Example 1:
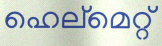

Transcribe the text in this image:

ഹെല്മെറ്റ്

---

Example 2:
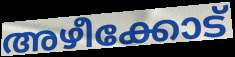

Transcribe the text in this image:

അഴീക്കോട്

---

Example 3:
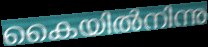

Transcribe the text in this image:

കൈയിൽനിന്നു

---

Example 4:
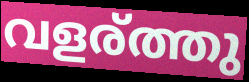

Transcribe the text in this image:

വളര്ത്തു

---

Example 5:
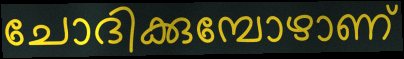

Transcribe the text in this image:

ചോദിക്കുമ്പോഴാണ്